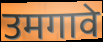
उमगावे